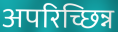
अपरिच्छिन्न